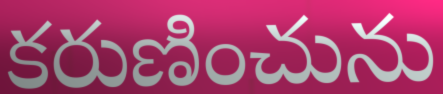
కరుణించును